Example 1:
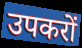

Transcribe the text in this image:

उपकरों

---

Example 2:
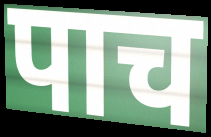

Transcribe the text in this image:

पाच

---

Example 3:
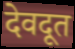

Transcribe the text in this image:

देवदूत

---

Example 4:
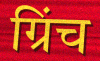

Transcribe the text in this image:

ग्रिंच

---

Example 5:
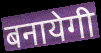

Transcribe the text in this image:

बनायेगी